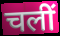
चलीं